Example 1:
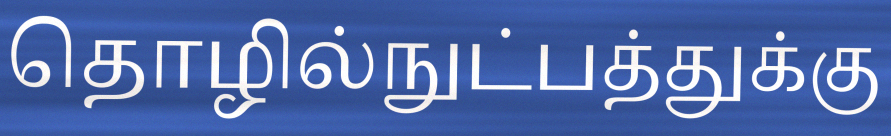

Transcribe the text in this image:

தொழில்நுட்பத்துக்கு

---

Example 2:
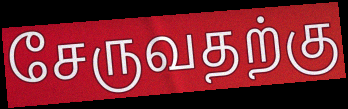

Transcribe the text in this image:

சேருவதற்கு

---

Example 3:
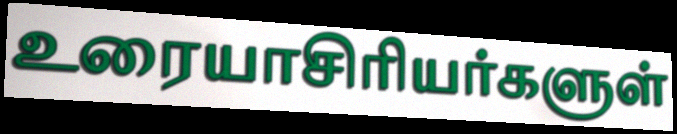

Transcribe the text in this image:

உரையாசிரியர்களுள்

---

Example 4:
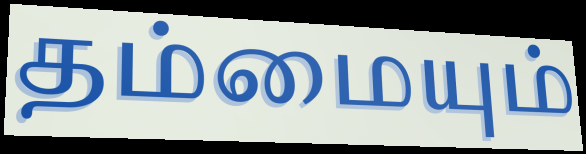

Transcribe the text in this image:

தம்மையும்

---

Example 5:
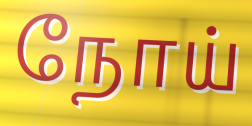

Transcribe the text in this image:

நோய்